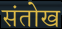
संतोख